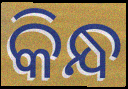
କିନ୍ଧ